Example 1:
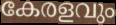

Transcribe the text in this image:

കേരളവും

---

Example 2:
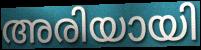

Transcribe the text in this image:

അരിയായി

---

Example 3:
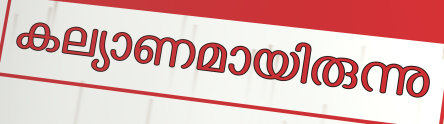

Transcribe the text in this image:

കല്യാണമായിരുന്നു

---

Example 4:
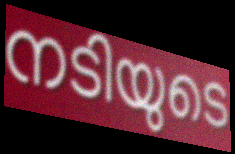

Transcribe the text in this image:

നടിയുടെ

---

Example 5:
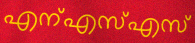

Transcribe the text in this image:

എന്എസ്എസ്